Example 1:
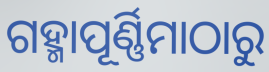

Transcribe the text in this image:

ଗହ୍ମାପୂର୍ଣ୍ଣିମାଠାରୁ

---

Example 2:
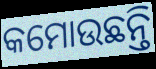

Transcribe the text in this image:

କମୋଉଛନ୍ତି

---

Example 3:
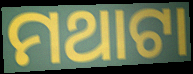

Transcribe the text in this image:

ମଥାଟା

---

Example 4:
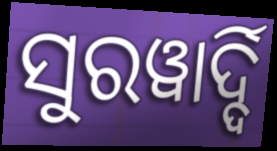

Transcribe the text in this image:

ସୁରୱାର୍ଦ୍ଦି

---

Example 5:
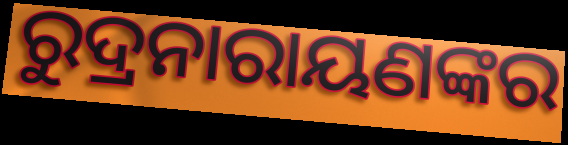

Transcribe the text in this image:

ରୁଦ୍ରନାରାୟଣଙ୍କର